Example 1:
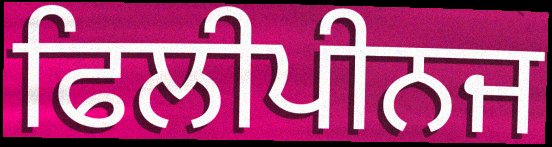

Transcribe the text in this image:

ਫਿਲੀਪੀਨਜ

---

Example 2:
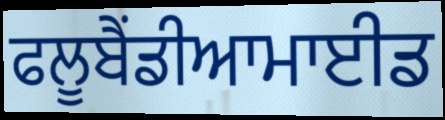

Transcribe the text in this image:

ਫਲੂਬੈਂਡੀਆਮਾਈਡ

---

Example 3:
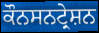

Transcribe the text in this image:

ਕੌਨਸਨਟ੍ਰੇਸ਼ਨ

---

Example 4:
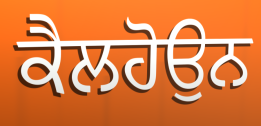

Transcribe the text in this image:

ਕੈਲਹੋਉਨ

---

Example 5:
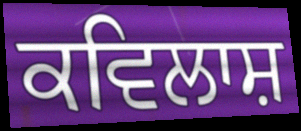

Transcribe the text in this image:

ਕਵਿਲਾਸ਼